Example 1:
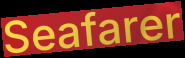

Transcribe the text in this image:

Seafarer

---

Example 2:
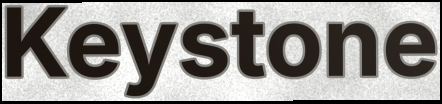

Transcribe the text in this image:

Keystone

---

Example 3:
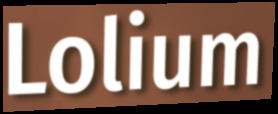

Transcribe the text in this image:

Lolium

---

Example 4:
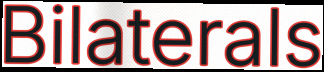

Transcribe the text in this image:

Bilaterals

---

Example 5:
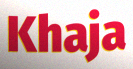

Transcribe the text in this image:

Khaja